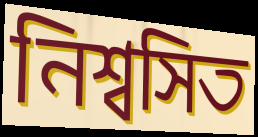
নিশ্বসিত